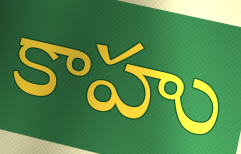
కాహు